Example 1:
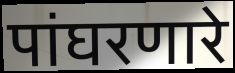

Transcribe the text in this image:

पांघरणारे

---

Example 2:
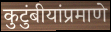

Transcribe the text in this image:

कुटुंबीयांप्रमाणे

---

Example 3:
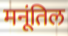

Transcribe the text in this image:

मनूंतिल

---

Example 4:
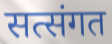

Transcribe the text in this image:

सत्संगत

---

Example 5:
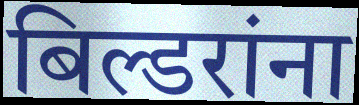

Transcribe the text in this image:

बिल्डरांना